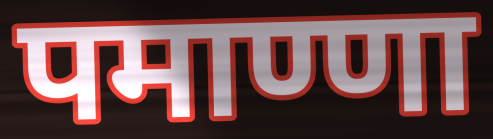
पमाण्णा